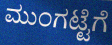
ಮುಂಗಟ್ಟೆಗೆ